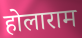
होलाराम